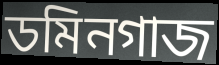
ডমিনগাজ